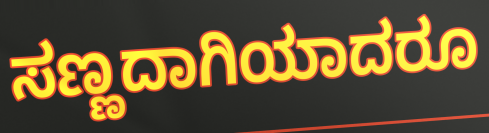
ಸಣ್ಣದಾಗಿಯಾದರೂ